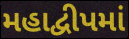
મહાદ્વીપમાં